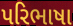
પરિભાષા